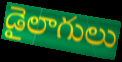
డైలాగులు